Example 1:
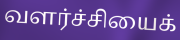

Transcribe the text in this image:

வளர்ச்சியைக்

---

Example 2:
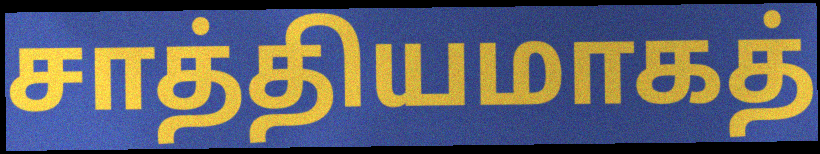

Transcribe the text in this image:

சாத்தியமாகத்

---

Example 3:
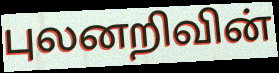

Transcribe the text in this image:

புலனறிவின்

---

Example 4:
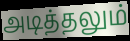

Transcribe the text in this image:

அடித்தலும்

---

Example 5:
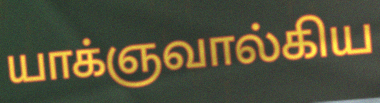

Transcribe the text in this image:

யாக்ஞவால்கிய